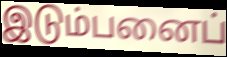
இடும்பனைப்